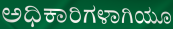
ಅಧಿಕಾರಿಗಳಾಗಿಯೂ